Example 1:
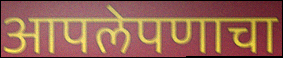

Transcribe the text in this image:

आपलेपणाचा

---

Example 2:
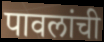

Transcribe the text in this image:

पावलांची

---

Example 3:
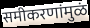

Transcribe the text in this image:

समीकरणांमुळं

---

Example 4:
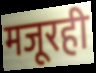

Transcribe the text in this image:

मजूरही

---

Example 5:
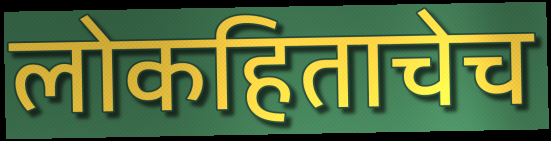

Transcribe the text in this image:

लोकहिताचेच